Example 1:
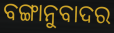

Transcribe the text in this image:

ବଙ୍ଗାନୁବାଦର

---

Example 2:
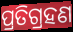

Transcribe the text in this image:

ପ୍ରତିଗ୍ରହଣ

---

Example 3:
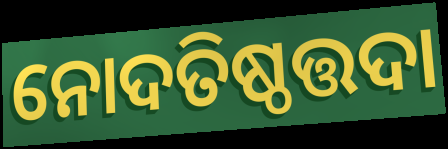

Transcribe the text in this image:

ନୋଦତିଷ୍ଠତ୍ତଦା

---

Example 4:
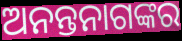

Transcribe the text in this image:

ଅନନ୍ତନାଗଙ୍କର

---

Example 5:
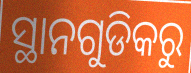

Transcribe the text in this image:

ସ୍ଥାନଗୁଡିକରୁ